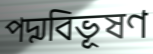
পদ্মবিভূষণ